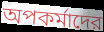
অপকর্মাদের